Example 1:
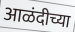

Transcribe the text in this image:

आळंदीच्या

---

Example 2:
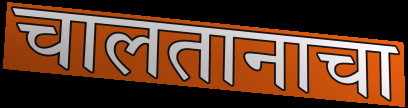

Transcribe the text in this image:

चालतानाचा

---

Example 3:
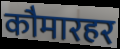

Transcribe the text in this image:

कौमारहर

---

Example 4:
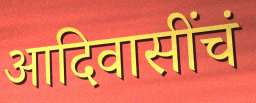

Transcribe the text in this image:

आदिवासींचं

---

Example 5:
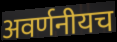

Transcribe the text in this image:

अवर्णनीयच